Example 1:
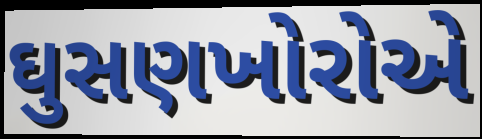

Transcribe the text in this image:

ઘુસણખોરોએ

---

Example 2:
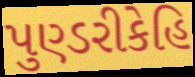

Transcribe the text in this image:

પુણ્ડરીકેહિ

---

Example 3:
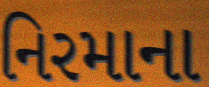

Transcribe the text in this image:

નિરમાના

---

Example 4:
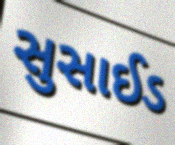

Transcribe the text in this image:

સુસાઈડ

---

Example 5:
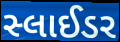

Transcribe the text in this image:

સ્લાઈડર